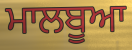
ਮਾਲਬੂਆ